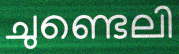
ചുണ്ടെലി